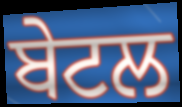
ਬੇਟਲ